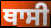
ਥਾਸੀ